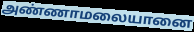
அண்ணாமலையானை